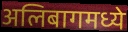
अलिबागमध्ये